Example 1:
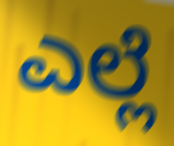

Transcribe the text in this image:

ಎಲ್ಲೆ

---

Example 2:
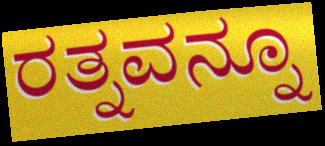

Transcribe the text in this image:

ರತ್ನವನ್ನೂ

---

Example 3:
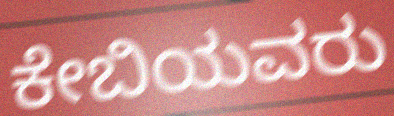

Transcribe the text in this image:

ಕೇಬಿಯವರು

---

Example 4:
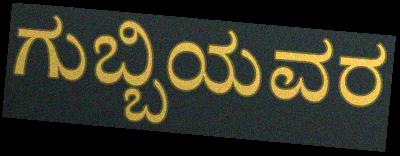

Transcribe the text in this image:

ಗುಬ್ಬಿಯವರ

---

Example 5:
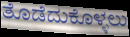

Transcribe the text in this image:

ತೊಡೆದುಕೊಳ್ಳಲು